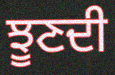
ਝੂਣਦੀ